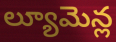
ల్యూమెన్ల